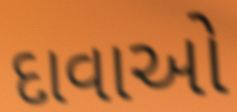
દાવાઓ